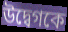
উদ্বেগকে